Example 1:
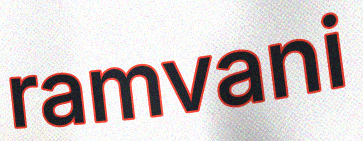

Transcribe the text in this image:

ramvani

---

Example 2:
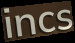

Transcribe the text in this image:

incs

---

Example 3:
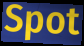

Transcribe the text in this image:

Spot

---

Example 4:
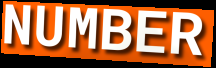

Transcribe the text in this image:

NUMBER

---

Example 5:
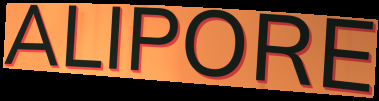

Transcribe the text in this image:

ALIPORE